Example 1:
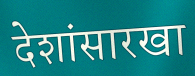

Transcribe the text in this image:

देशांसारखा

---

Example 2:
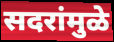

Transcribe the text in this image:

सदरांमुळे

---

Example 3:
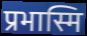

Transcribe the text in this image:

प्रभास्मि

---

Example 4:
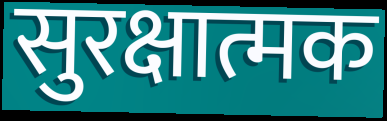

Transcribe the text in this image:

सुरक्षात्मक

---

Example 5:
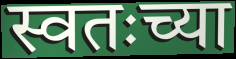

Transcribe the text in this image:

स्वतःच्या